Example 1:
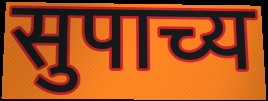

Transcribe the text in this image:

सुपाच्य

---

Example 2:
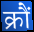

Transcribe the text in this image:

क्रौं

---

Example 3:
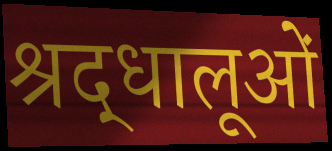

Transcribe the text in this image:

श्रद्धालूओं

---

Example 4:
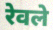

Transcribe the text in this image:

रेवले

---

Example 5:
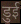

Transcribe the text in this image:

डुई